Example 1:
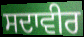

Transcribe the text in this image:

ਸਦਾਵੀਰ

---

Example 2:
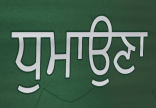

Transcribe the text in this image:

ਧੁਮਾਉਣਾ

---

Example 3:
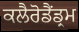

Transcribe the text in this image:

ਕਲੈਰੋਡੈਂਡ੍ਰਮ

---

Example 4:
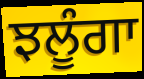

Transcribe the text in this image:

ਝਲੂੰਗਾ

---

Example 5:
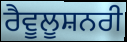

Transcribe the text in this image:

ਰੈਵੂਲੂਸ਼ਨਰੀ